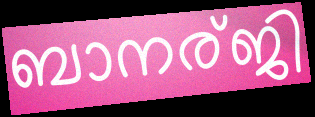
ബാനര്ജി